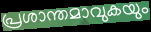
പ്രശാന്തമാവുകയും